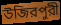
উজিরপুরী